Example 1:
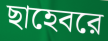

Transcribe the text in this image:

ছাহেবরে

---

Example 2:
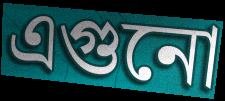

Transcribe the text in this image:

এগুনো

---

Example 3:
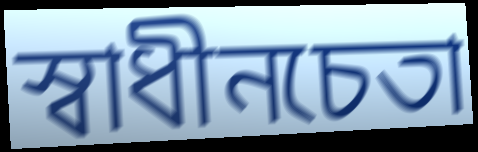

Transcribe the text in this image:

স্বাধীনচেতা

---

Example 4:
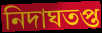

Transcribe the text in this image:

নিদাঘতপ্ত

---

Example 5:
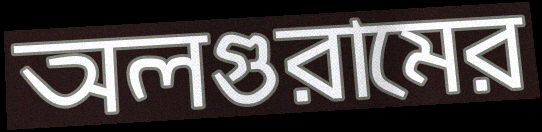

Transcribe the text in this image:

অলগুরামের